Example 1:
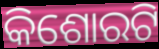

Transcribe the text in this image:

କିଶୋରଟି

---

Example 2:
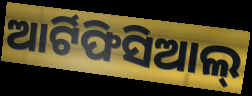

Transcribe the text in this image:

ଆର୍ଟିଫିସିଆଲ୍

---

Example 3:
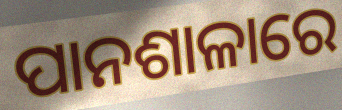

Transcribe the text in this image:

ପାନଶାଳାରେ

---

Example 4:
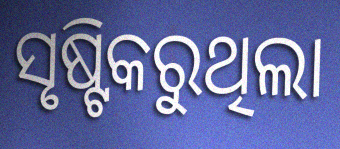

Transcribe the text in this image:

ସୃଷ୍ଟିକରୁଥିଲା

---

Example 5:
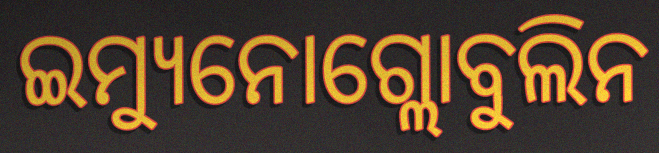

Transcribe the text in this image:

ଇମ୍ୟୁନୋଗ୍ଲୋବୁଲିନ